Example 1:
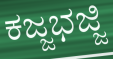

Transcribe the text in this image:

ಕಜ್ಜಭಜ್ಜಿ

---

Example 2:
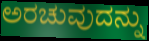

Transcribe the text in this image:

ಅರಚುವುದನ್ನು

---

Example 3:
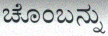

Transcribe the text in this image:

ಚೊಂಬನ್ನು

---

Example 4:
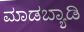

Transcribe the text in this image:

ಮಾಡಬ್ಯಾಡಿ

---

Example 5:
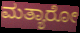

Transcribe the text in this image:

ಮತ್ಯಾರೋ